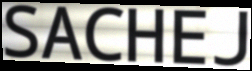
SACHEJ